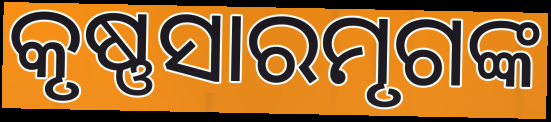
କୃଷ୍ଣସାରମୃଗଙ୍କ